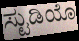
ಸ್ಟುಡಿಯೊ